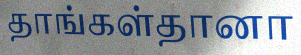
தாங்கள்தானா